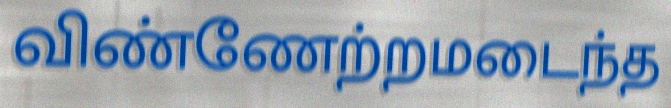
விண்ணேற்றமடைந்த